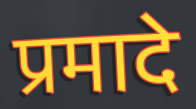
प्रमादे